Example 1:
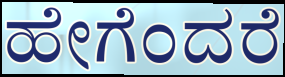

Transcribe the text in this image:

ಹೇಗೆಂದರೆ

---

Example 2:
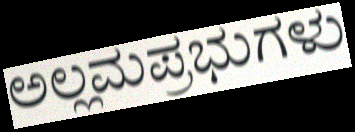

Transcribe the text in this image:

ಅಲ್ಲಮಪ್ರಭುಗಳು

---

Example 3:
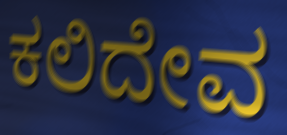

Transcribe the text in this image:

ಕಲಿದೇವ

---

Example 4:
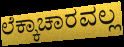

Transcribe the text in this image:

ಲೆಕ್ಕಾಚಾರವಲ್ಲ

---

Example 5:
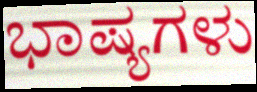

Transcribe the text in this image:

ಭಾಷ್ಯಗಳು